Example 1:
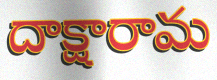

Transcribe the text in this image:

దాక్షారామ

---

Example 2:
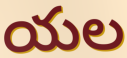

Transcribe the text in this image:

యల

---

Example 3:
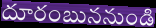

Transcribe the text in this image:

దూరంబుననుండి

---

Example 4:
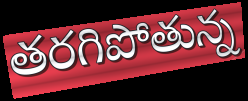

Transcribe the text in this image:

తరగిపోతున్న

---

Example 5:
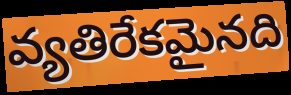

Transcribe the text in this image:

వ్యతిరేకమైనది